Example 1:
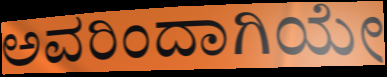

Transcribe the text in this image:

ಅವರಿಂದಾಗಿಯೇ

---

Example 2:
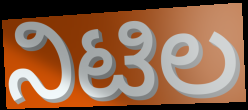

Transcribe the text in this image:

ನಿಟಿಲ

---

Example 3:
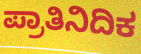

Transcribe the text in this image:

ಪ್ರಾತಿನಿದಿಕ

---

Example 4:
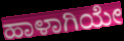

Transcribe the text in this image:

ಹಾಳಾಗಿಯೇ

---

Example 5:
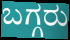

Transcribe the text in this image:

ಬಗ್ಗರು